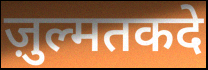
ज़ुल्मतकदे